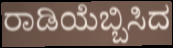
ರಾಡಿಯೆಬ್ಬಿಸಿದ